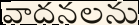
వాదనలను